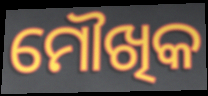
ମୌଖିକ